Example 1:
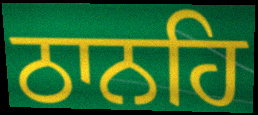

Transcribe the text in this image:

ਠਾਨਹਿ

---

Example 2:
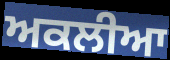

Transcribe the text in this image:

ਅਕਲੀਆ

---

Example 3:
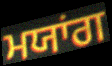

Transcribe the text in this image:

ਮਯਾਂਗ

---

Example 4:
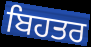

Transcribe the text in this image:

ਬਿਹਤਰ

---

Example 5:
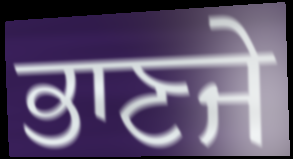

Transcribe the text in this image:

ਭਾਣਜੇ